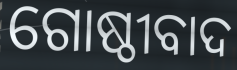
ଗୋଷ୍ଠୀବାଦ